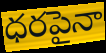
ధరపైనా